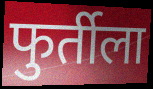
फुर्तीला